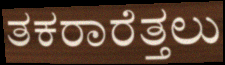
ತಕರಾರೆತ್ತಲು